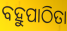
ବହୁପାଠିତା